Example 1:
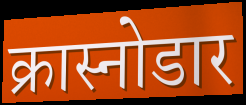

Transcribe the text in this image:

क्रास्नोडार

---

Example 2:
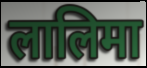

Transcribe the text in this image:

लालिमा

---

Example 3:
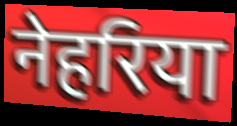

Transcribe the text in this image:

नेहरिया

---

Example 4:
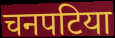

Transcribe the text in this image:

चनपटिया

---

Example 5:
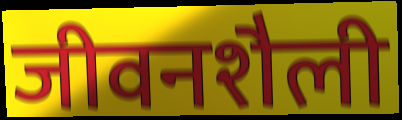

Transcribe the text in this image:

जीवनशैली